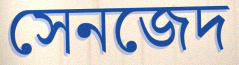
সেনজেদ